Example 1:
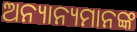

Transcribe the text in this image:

ଅନ୍ୟାନ୍ୟମାନଙ୍କ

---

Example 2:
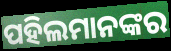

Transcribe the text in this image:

ପହିଲମାନଙ୍କର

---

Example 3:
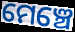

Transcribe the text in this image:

ମେଞ୍ଚେ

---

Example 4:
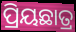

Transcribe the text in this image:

ପ୍ରିୟଛାତ୍ର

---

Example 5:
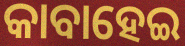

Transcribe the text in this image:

କାବାହେଇ